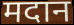
मदान